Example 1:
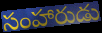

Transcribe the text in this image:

సంహారుడు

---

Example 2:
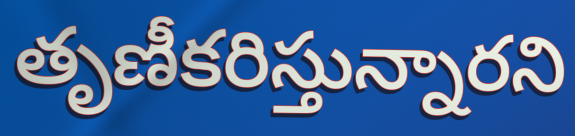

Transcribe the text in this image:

తృణీకరిస్తున్నారని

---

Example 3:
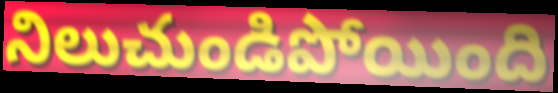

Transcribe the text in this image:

నిలుచుండిపోయింది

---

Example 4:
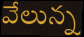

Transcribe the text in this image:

వేలున్న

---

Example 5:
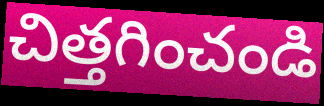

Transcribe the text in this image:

చిత్తగించండి